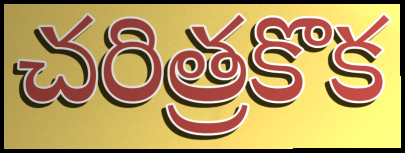
చరిత్రకొక